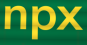
npx